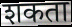
शकता